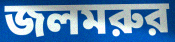
জলমরুর